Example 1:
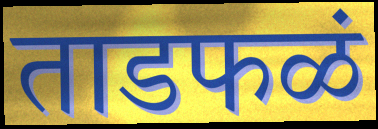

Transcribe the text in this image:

ताडफळं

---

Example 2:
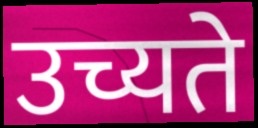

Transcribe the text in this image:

उच्यते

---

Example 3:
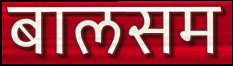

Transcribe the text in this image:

बालसम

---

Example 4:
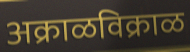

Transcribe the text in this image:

अक्राळविक्राळ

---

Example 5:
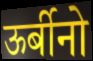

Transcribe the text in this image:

ऊर्बीनो